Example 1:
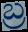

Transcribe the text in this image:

బ్ర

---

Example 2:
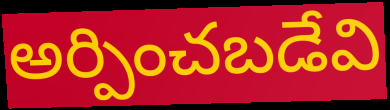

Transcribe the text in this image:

అర్పించబడేవి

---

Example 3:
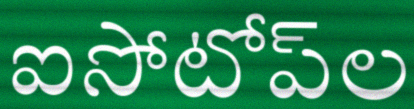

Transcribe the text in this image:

ఐసోటోప్‌ల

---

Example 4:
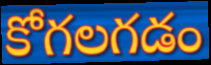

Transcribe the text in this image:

కోగలగడం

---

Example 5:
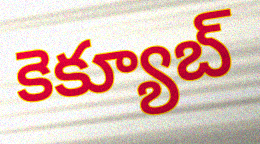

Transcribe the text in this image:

కెక్యూబ్